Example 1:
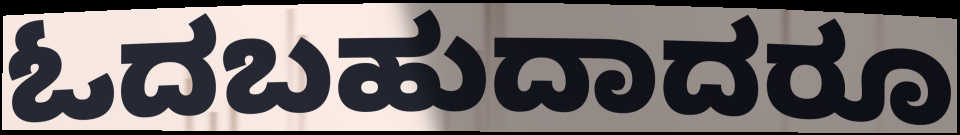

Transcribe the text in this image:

ಓದಬಹುದಾದರೂ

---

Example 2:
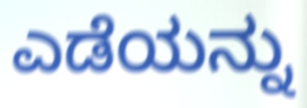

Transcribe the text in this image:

ಎಡೆಯನ್ನು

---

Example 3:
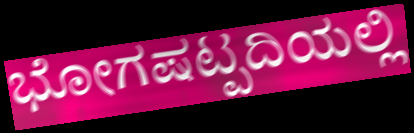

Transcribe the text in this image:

ಭೋಗಷಟ್ಪದಿಯಲ್ಲಿ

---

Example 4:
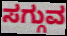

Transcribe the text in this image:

ಸಗ್ಗುವ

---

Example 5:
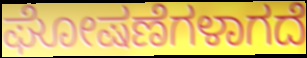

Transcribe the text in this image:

ಘೋಷಣೆಗಳಾಗದೆ